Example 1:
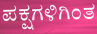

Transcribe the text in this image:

ಪಕ್ಷಗಳಿಗಿಂತ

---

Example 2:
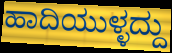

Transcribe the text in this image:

ಹಾದಿಯುಳ್ಳದ್ದು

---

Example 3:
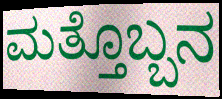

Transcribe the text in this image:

ಮತ್ತೊಬ್ಬನ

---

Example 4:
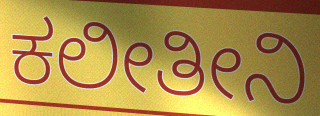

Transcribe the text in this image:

ಕಲೀತೀನಿ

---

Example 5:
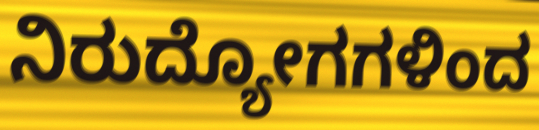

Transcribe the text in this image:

ನಿರುದ್ಯೋಗಗಳಿಂದ